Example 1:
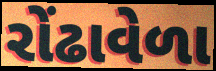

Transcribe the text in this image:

રોંઢાવેળા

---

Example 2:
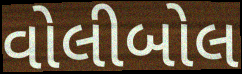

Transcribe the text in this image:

વોલીબોલ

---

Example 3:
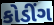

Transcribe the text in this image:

કોડીંગ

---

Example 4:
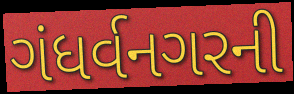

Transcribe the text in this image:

ગંધર્વનગરની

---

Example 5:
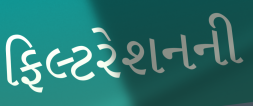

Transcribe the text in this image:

ફિલ્ટરેશનની